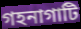
গহনাগাটি